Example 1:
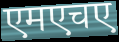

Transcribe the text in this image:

एमएचए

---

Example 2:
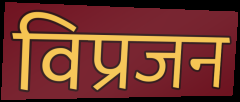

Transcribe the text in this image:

विप्रजन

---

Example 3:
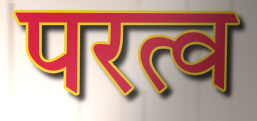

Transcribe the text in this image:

परत्व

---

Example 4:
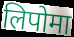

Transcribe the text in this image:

लिपोमा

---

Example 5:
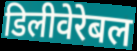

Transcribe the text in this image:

डिलीवेरेबल